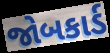
જોબકાર્ડ